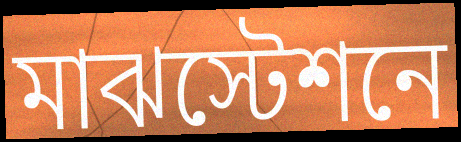
মাঝস্টেশনে